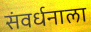
संवर्धनाला